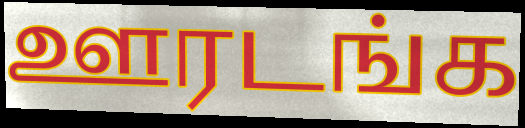
ஊரடங்க